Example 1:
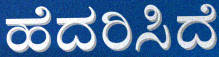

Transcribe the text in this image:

ಹೆದರಿಸಿದೆ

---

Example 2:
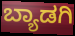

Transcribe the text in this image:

ಬ್ಯಾಡಗಿ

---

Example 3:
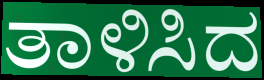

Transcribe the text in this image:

ತಾಳಿಸಿದ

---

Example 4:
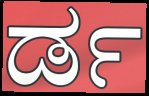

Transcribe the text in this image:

ರ್ಡ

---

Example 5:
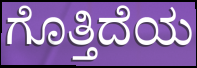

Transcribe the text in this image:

ಗೊತ್ತಿದೆಯ